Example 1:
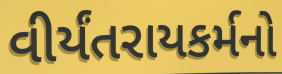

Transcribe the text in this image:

વીર્યંતરાયકર્મનો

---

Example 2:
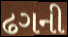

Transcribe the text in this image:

ઢગની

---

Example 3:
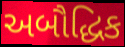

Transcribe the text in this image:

અબૌદ્ધિક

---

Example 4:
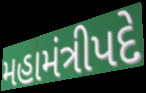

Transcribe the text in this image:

મહામંત્રીપદે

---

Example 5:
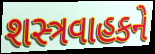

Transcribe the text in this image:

શસ્ત્રવાહકને